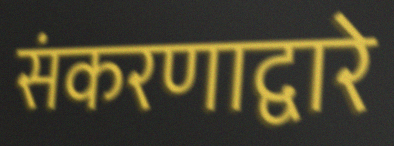
संकरणाद्वारे